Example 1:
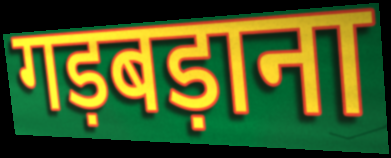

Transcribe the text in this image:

गड़बड़ाना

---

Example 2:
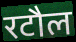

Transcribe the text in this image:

रटौल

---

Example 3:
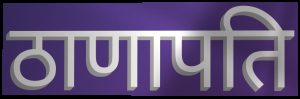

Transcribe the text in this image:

ठाणापति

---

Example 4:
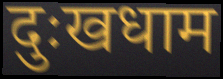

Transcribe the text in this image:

दुःखधाम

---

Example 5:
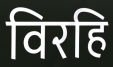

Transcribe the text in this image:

विरहि